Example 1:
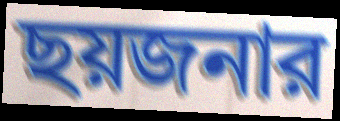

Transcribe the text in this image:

ছয়জনার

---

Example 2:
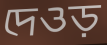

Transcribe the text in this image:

দেওড়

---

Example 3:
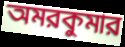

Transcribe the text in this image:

অমরকুমার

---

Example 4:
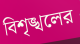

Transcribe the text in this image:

বিশৃঙ্খলের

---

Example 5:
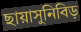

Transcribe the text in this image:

ছায়াসুনিবিড়